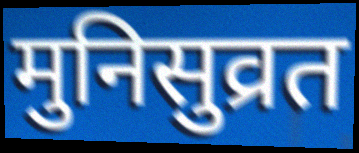
मुनिसुव्रत